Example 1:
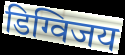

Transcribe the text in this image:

डिग्विजय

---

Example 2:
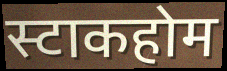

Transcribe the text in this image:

स्टाकहोम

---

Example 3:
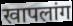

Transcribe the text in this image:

खापलांग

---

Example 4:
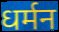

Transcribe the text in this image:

धर्मन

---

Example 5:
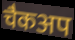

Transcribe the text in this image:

चैकअप